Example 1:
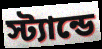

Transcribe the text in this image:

স্ট্যান্ডে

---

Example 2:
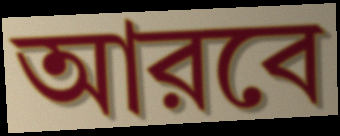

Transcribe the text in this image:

আরবে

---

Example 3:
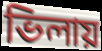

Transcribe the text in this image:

ভিলায়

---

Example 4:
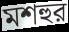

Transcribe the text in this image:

মশহুর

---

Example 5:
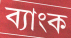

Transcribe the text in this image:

ব্যাংক